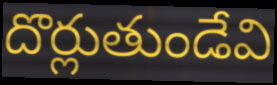
దొర్లుతుండేవి